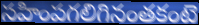
సహింపగలిగినంతకంటె